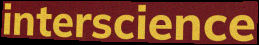
interscience